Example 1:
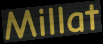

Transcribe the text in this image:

Millat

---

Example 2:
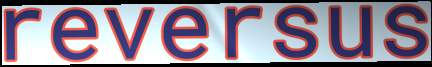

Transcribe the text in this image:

reversus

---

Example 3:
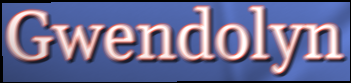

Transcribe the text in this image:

Gwendolyn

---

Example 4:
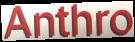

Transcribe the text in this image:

Anthro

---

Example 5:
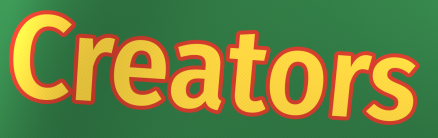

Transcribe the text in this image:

Creators